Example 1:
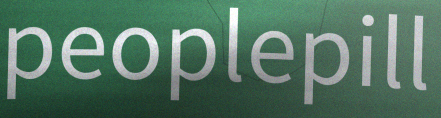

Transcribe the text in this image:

peoplepill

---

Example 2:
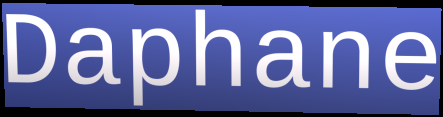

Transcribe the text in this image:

Daphane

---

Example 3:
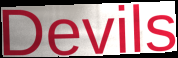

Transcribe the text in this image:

Devils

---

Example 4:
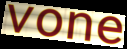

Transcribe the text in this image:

vone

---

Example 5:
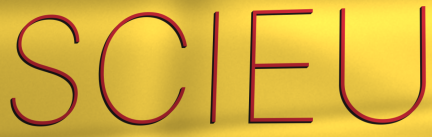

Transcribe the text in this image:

SCIEU